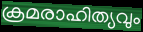
ക്രമരാഹിത്യവും